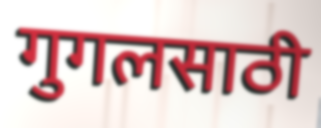
गुगलसाठी